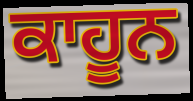
ਕਾਹੂਨ